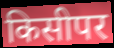
किसीपर